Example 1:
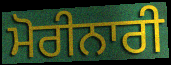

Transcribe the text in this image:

ਮੋਰੀਨਾਰੀ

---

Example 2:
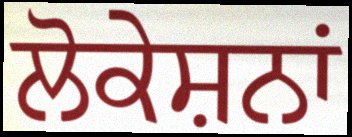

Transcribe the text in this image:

ਲੋਕੇਸ਼ਨਾਂ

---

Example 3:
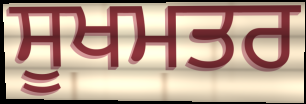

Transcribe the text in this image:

ਸੂਖਮਤਰ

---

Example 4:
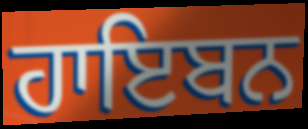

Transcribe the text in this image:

ਹਾਇਬਨ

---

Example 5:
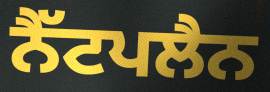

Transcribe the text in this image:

ਨੈੱਟਪਲੈਨ